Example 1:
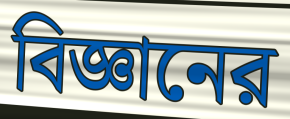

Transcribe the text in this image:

বিজ্ঞানের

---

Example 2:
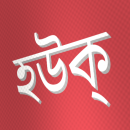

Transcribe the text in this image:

হউক্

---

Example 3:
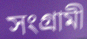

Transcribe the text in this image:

সংগ্রামী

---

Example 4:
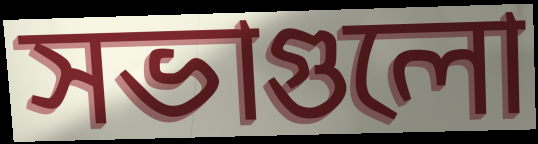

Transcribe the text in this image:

সভাগুলো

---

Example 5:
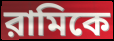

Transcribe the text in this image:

রামিকে